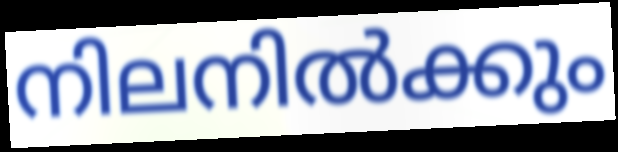
നിലനിൽക്കും